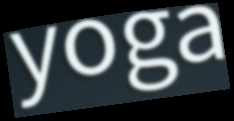
yoga